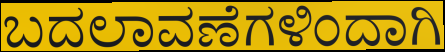
ಬದಲಾವಣೆಗಳಿಂದಾಗಿ